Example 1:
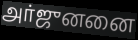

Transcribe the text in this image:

அர்ஜுனனை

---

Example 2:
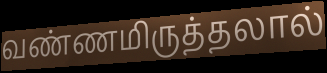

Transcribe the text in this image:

வண்ணமிருத்தலால்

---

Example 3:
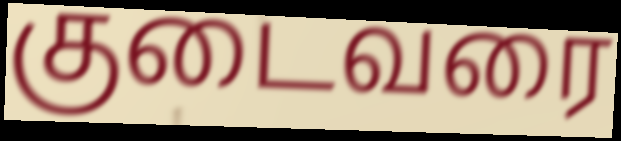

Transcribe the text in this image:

குடைவரை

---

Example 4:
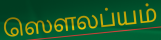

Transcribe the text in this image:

ஸௌலப்யம்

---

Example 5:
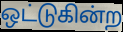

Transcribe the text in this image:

ஒட்டுகின்ற